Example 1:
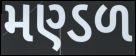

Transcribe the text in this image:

મણ્ડળ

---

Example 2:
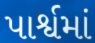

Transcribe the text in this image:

પાર્શ્વમાં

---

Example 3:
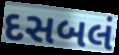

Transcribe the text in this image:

દસબલં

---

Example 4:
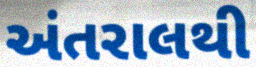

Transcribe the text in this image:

અંતરાલથી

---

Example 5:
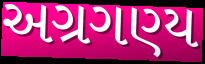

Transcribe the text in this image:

અગ્રગણ્ય